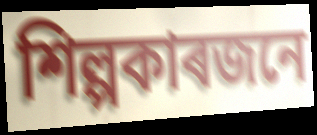
শিল্পকাৰজনে